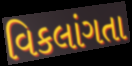
વિકલાંગતા